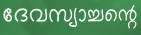
ദേവസ്യാച്ചന്റെ